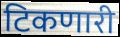
टिकणारी